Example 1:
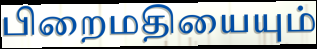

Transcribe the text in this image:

பிறைமதியையும்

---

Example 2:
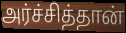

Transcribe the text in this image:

அர்ச்சித்தான்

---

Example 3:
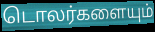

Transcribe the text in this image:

டொலர்களையும்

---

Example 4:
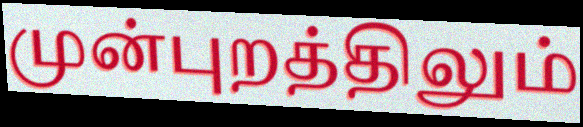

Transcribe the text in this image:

முன்புறத்திலும்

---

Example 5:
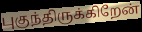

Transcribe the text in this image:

புகுந்திருக்கிறேன்